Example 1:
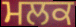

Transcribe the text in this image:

ਮਲਕ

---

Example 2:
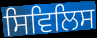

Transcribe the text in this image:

ਸਿਵਿਲਿਸ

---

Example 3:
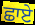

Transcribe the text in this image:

ਛਾਏ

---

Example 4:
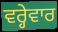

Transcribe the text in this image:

ਵਰ੍ਹੇਵਾਰ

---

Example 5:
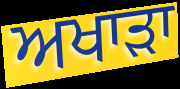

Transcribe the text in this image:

ਅਖਾੜਾ